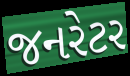
જનરેટર